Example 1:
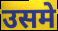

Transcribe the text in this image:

उसमे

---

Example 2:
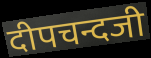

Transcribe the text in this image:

दीपचन्दजी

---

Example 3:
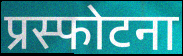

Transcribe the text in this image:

प्रस्फोटना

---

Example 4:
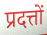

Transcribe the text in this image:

प्रदत्तों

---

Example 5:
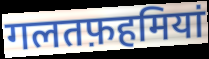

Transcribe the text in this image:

गलतफ़हमियां